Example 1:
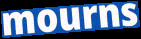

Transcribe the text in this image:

mourns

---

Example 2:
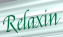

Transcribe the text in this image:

Relaxin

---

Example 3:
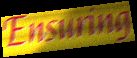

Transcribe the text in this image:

Ensuring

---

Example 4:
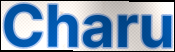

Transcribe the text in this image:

Charu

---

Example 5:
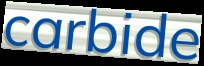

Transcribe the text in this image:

carbide